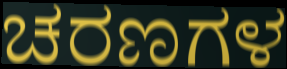
ಚರಣಗಳ